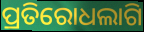
ପ୍ରତିରୋଧଲାଗି